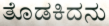
ತೊಡಕಿದನು